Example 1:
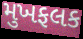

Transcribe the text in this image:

મુખફલક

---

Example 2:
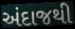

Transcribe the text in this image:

અંદાજથી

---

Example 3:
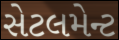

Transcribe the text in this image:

સેટલમેન્ટ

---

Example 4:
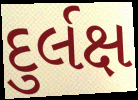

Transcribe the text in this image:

દુર્લક્ષ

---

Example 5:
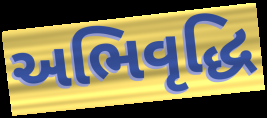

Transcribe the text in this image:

અભિવૃદ્ધિ